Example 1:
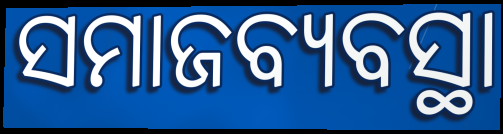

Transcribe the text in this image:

ସମାଜବ୍ୟବସ୍ଥା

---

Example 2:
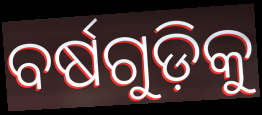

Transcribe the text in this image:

ବର୍ଷଗୁଡ଼ିକୁ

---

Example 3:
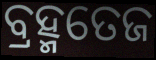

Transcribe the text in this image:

ବ୍ରହ୍ମତେଜ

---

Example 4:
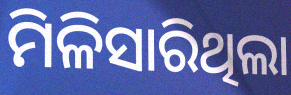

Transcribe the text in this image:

ମିଳିସାରିଥିଲା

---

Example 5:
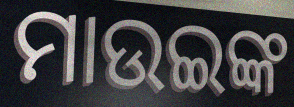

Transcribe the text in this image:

ମାଉଇଙ୍କ